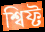
শ্বিফ্ট